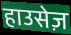
हाउसेज़